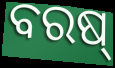
ବରଷ୍